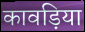
कावड़िया